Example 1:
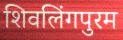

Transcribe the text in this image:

शिवलिंगपुरम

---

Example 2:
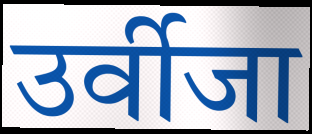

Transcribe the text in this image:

उर्वीजा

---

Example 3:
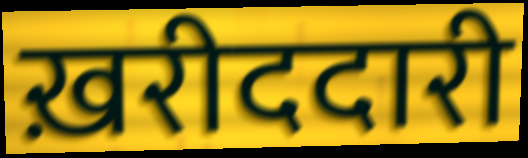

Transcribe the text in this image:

ख़रीददारी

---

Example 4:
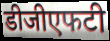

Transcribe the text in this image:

डीजीएफटी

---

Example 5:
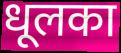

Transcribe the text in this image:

धूलका